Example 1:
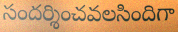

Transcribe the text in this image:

సందర్శించవలసిందిగా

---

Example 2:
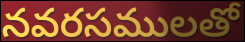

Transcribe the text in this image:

నవరసములతో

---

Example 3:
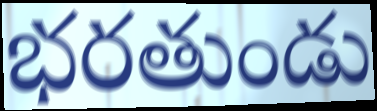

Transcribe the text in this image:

భరతుండు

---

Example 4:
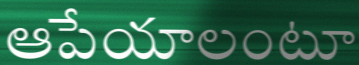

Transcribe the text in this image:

ఆపేయాలంటూ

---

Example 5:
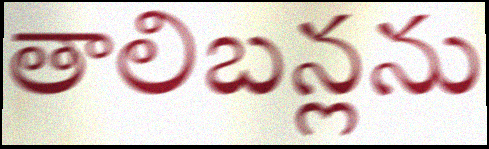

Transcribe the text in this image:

తాలిబన్లను